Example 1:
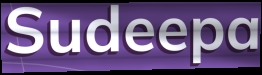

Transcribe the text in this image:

Sudeepa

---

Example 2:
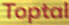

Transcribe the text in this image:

Toptal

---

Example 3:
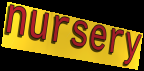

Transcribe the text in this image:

nursery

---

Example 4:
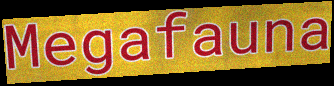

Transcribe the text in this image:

Megafauna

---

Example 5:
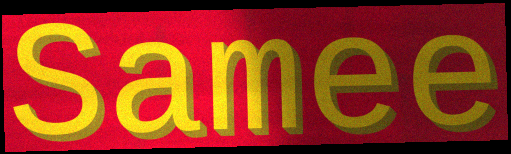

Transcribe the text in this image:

Samee